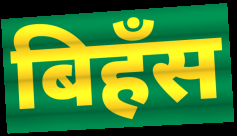
बिहँस